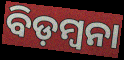
ବିଡ଼ମ୍ୱନା